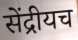
सेंद्रीयच